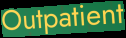
Outpatient